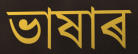
ভাষাৰ